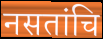
नसतांचि